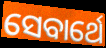
ସେବାର୍ଥେ